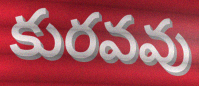
కురవవు